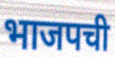
भाजपची